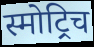
स्मोट्रिच